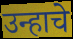
उन्हाचे